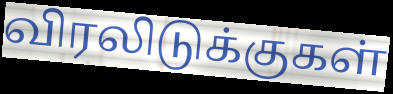
விரலிடுக்குகள்